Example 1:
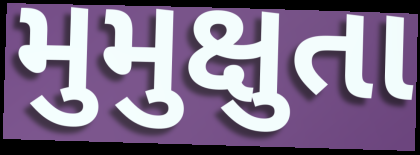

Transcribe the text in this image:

મુમુક્ષુતા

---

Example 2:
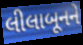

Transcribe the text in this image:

લીલાબૂનને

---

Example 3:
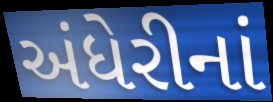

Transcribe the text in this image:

અંધેરીનાં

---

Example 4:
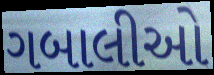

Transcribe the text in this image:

ગબાલીઓ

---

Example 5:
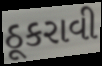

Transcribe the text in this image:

ઠૂકરાવી